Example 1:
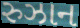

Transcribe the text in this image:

રુઝાન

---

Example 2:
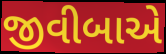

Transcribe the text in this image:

જીવીબાએ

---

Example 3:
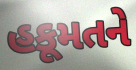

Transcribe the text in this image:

હકૂમતને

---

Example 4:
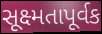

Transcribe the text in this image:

સૂક્ષ્મતાપૂર્વક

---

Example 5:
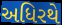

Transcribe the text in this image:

અધિરથે